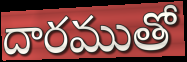
దారముతో